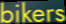
bikers